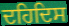
ਦਹਿਦਿਸ